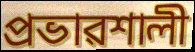
প্ৰভাৱশালী